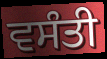
ਵਸੰਤੀ